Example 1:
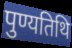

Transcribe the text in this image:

पुण्यतिथि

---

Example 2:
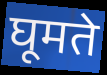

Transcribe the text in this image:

घूमते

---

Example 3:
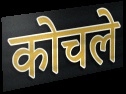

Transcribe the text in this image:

कोचले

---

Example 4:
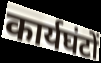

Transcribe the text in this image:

कार्यघंटों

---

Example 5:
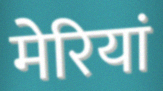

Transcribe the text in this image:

मेरियां